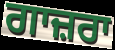
ਗਾਜ਼ਰਾ